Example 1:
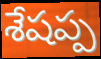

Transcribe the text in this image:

శేషప్ప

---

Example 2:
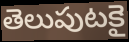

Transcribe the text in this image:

తెలుపుటకై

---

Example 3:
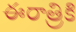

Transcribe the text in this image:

ఈరాత్రికి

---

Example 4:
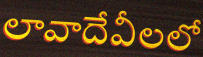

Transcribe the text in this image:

లావాదేవీలలో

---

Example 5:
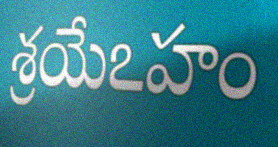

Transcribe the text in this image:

శ్రయేఽహం